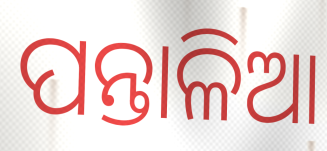
ପନ୍ତାଳିଆ